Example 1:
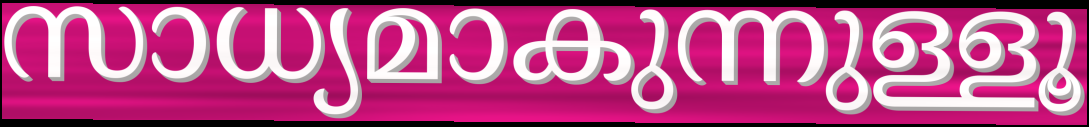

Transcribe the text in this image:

സാധ്യമാകുന്നുള്ളൂ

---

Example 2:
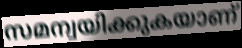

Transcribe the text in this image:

സമന്വയിക്കുകയാണ്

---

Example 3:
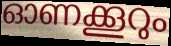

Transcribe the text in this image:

ഓണക്കൂറും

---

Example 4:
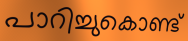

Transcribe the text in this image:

പാറിച്ചുകൊണ്ട്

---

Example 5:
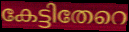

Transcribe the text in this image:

കേട്ടിതേറെ